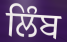
ਲਿੰਬ